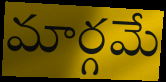
మార్గమే